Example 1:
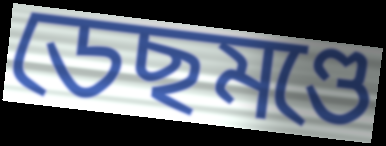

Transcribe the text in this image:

ডেছমণ্ডে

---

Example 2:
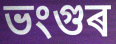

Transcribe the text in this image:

ভংগুৰ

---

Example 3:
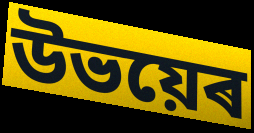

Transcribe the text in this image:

উভয়েৰ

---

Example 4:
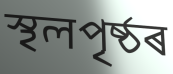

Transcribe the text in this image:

স্থলপৃষ্ঠৰ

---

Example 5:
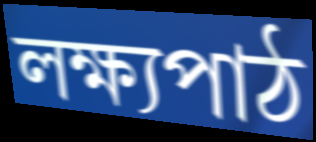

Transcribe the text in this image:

লক্ষ্যপাঠ